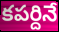
కపర్దినే